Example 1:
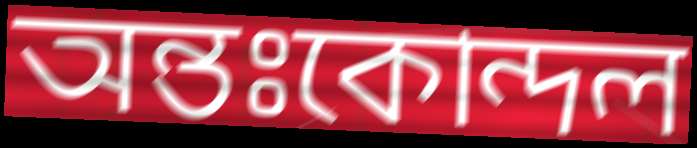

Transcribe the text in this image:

অন্তঃকোন্দল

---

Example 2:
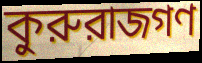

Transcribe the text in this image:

কুরুরাজগণ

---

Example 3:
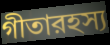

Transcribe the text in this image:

গীতারহস্য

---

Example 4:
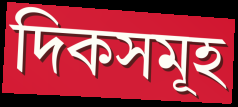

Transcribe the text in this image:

দিকসমূহ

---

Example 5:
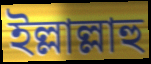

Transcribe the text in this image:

ইল্লাল্লাহু